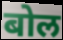
बोल